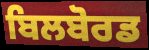
ਬਿਲਬੋਰਡ